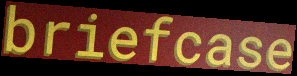
briefcase